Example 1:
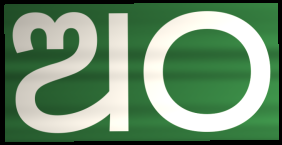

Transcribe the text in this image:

ଅଠ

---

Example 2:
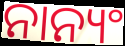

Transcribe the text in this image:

ନାନ୍ୟଂ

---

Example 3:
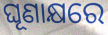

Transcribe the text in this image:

ଘୂଣାକ୍ଷରେ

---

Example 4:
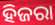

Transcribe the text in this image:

ହିଜରା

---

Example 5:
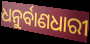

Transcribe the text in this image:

ଧନୁର୍ବାଣଧାରୀ